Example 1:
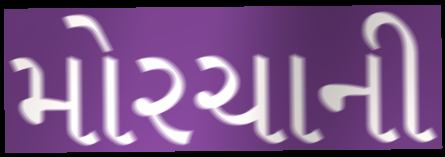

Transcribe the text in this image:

મોરચાની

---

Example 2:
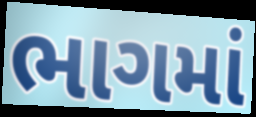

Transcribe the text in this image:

ભાગમાં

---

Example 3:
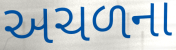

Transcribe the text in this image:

અચળના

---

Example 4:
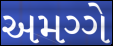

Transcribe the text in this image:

અમગ્ગે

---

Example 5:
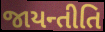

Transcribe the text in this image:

જાયન્તીતિ